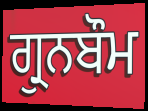
ਗ੍ਰੁਨਬੌਮ